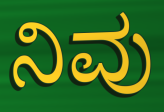
ನಿವು